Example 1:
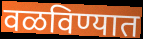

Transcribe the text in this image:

वळविण्यात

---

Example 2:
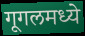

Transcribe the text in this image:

गूगलमध्ये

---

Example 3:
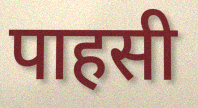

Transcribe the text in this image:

पाहसी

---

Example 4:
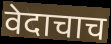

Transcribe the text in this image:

वेदाचाच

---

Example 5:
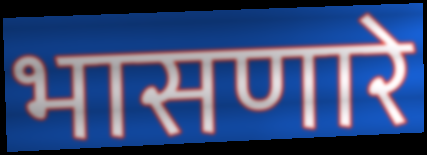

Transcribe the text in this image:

भासणारे